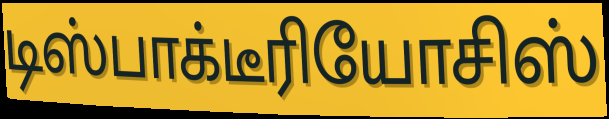
டிஸ்பாக்டீரியோசிஸ்